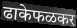
ढाकेफळकर